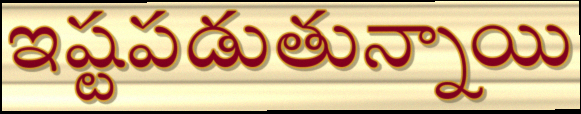
ఇష్టపడుతున్నాయి